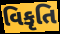
વિકૃતિ